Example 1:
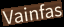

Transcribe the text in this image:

Vainfas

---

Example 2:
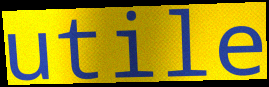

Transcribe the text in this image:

utile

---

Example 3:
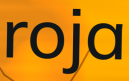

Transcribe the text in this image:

roja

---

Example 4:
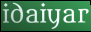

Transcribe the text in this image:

idaiyar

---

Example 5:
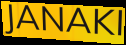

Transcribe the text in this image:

JANAKI